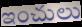
ఇంచులు